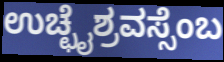
ಉಚ್ಛೈಶ್ರವಸ್ಸೆಂಬ